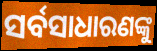
ସର୍ବସାଧାରଣଙ୍କୁ